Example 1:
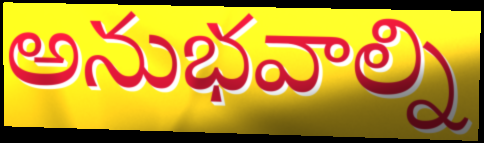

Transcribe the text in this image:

అనుభవాల్ని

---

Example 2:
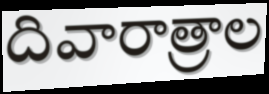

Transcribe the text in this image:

దివారాత్రాల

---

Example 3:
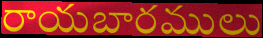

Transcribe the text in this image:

రాయబారములు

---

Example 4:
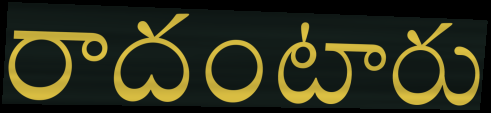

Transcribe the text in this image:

రాదంటారు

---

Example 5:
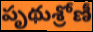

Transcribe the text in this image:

పృథుశ్రోణీ